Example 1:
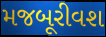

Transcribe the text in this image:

મજબૂરીવશ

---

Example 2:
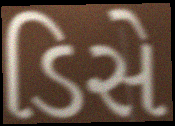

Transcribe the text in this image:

ડિસે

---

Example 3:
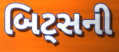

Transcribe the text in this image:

બિટ્સની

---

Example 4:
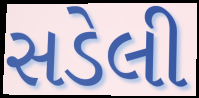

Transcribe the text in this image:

સડેલી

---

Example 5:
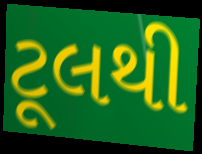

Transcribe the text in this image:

ટૂલથી